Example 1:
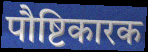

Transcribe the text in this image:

पौष्टिकारक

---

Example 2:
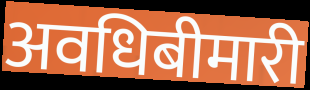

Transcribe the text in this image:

अवधिबीमारी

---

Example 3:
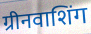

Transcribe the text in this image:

ग्रीनवाशिंग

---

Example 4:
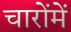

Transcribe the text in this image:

चारोंमें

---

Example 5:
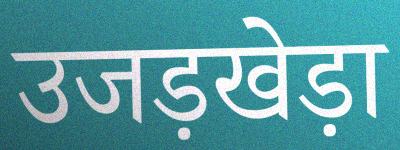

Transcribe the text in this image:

उजड़खेड़ा